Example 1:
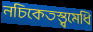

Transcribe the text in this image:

নচিকেতস্ত্বমেধি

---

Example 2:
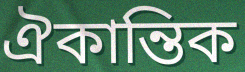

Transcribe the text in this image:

ঐকান্তিক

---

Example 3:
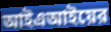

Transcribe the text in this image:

আইএআইয়ের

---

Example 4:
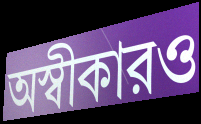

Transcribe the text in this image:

অস্বীকারও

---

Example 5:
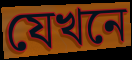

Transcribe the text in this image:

যেখনে